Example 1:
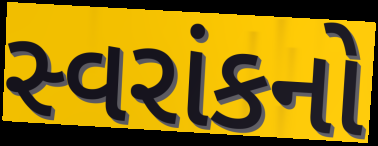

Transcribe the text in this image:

સ્વરાંકનો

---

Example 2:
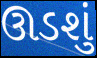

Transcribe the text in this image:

ઊડશું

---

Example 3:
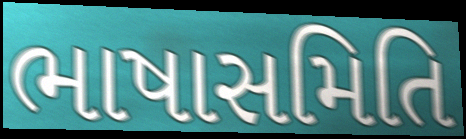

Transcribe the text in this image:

ભાષાસમિતિ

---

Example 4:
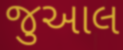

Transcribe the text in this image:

જુઆલ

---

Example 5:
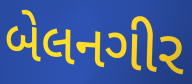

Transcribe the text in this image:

બેલનગીર